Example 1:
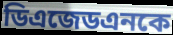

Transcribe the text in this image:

ডিএজেডএনকে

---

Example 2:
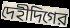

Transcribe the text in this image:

দেহীদিগের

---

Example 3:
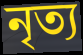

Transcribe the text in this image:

নৃত্য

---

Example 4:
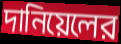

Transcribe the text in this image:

দানিয়েলের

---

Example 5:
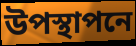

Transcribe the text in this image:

উপস্থাপনে